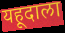
यहूदाला